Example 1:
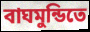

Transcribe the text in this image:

বাঘমুন্ডিতে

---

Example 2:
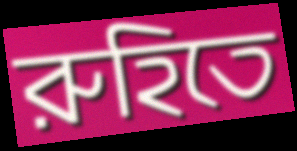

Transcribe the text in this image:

রুহিতে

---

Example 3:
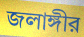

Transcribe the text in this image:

জলাঙ্গীর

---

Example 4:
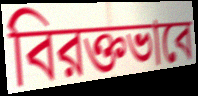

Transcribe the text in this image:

বিরক্তভাবে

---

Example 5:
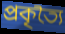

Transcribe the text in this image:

প্রকৃত্যৈ